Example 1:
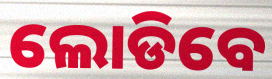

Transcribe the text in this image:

ଲୋଡିବେ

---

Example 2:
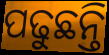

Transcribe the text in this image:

ପଢୁଛନ୍ତି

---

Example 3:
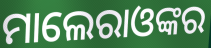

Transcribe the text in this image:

ମାଲେରାଓଙ୍କର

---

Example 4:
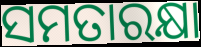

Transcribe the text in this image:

ସମତାରକ୍ଷା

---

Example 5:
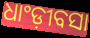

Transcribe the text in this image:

ଧାଂଡ଼ୀବସା